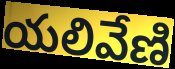
యలివేణి